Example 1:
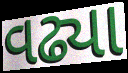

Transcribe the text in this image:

વઢ્યા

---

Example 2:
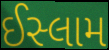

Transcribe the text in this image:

ઈસ્લામ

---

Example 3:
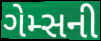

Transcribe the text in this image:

ગેમ્સની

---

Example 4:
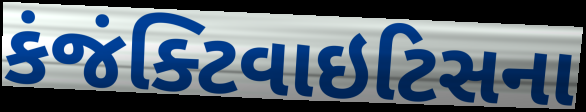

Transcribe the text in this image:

કંજંક્ટિવાઇટિસના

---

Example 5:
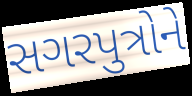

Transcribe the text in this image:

સગરપુત્રોને